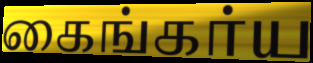
கைங்கர்ய